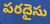
పరదైసు